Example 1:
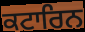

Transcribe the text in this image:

ਕਟਾਰਿਨ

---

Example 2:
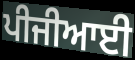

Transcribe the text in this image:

ਪੀਜੀਆਈ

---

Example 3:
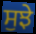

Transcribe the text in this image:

ਸੁਝੇ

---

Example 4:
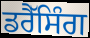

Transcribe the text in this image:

ਡਰੈੱਸਿੰਗ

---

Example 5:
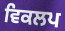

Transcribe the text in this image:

ਵਿਕਲਪ